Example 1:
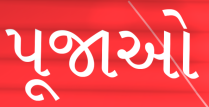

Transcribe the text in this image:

પૂજાઓ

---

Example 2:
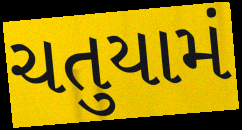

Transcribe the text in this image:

ચતુયામં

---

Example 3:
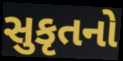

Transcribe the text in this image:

સુકૃતનો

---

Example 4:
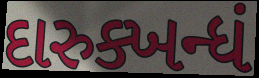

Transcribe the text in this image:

દારુક્ખન્ધં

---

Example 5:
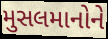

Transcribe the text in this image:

મુસલમાનોને